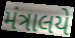
મંત્રાલયે